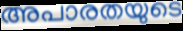
അപാരതയുടെ